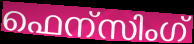
ഫെന്സിംഗ്